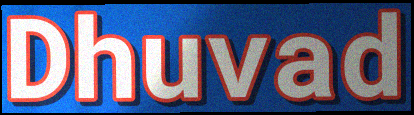
Dhuvad